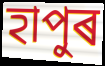
হাপুৰ